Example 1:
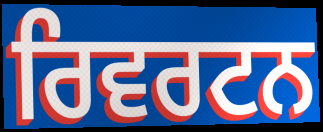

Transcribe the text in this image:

ਰਿਵਰਟਨ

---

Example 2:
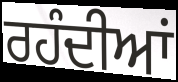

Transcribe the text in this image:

ਰਹੰਦੀਆਂ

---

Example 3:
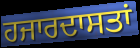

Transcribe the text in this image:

ਹਜਾਰਦਾਸਤਾਂ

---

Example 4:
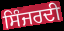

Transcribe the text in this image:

ਸਿੰਜਰਦੀ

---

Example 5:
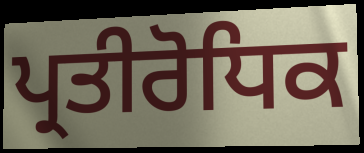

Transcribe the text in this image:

ਪ੍ਰਤੀਰੋਧਿਕ